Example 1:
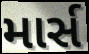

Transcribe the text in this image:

માર્સ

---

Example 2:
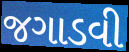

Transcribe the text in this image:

જગાડવી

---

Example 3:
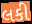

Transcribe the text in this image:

લકી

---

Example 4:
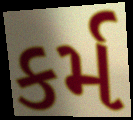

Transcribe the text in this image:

કર્મ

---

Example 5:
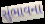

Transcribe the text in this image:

સુંભાવના